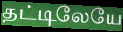
தட்டிலேயே